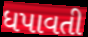
ધપાવતી